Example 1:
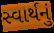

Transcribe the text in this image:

સ્વાર્થનું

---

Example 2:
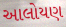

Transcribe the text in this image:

આલોયણ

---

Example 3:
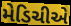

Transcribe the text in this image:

મેડિચીએ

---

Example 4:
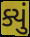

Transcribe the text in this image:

ક્યું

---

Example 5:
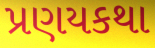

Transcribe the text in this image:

પ્રણયકથા